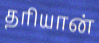
தரியான்